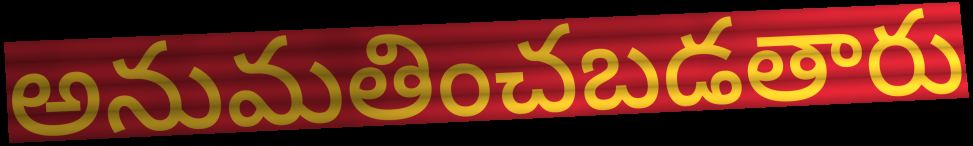
అనుమతించబడతారు